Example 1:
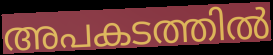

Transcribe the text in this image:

അപകടത്തിൽ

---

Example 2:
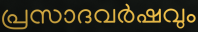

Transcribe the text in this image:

പ്രസാദവർഷവും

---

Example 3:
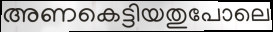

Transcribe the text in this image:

അണകെട്ടിയതുപോലെ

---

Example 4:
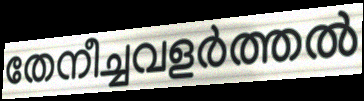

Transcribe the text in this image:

തേനീച്ചവളർത്തൽ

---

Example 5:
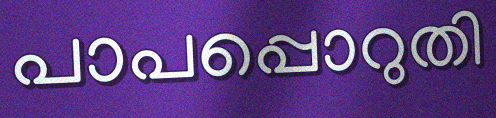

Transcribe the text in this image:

പാപപ്പൊറുതി